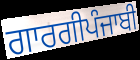
ਗਾਰਗੀਪੰਜਾਬੀ